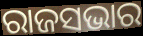
ରାଜସଭାର